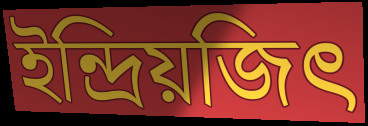
ইন্দ্রিয়জিৎ